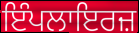
ਇੰਪਲਾਇਰਜ਼